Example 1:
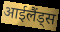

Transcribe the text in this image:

आईलैंड्स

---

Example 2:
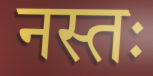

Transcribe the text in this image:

नस्तः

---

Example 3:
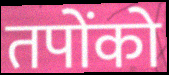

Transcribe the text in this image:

तपोंको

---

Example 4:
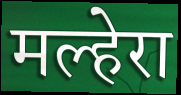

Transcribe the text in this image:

मल्हेरा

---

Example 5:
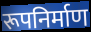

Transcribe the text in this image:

रूपनिर्माण